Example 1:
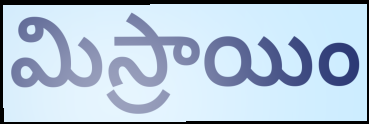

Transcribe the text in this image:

మిస్రాయిం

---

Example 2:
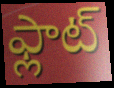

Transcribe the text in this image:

ఫ్లాట్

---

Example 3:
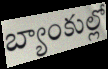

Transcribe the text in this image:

బ్యాంకుల్లో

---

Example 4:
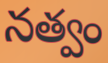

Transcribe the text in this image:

నత్వం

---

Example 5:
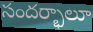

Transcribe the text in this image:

సందర్భాలూ